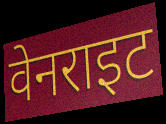
वेनराइट